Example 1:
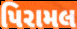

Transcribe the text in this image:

પિરામલ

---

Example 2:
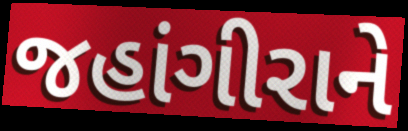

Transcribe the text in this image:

જહાંગીરાને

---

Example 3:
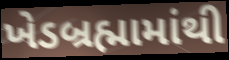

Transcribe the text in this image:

ખેડબ્રહ્મામાંથી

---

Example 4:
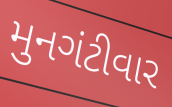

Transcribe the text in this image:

મુનગંટીવાર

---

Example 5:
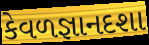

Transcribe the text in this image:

કેવળજ્ઞાનદશા